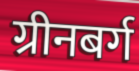
ग्रीनबर्ग